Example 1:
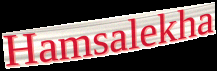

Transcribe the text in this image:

Hamsalekha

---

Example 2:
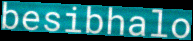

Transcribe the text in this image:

besibhalo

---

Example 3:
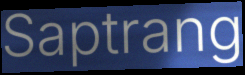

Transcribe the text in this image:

Saptrang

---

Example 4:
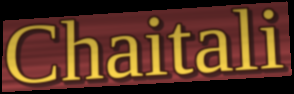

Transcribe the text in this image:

Chaitali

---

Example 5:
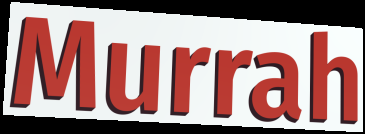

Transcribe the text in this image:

Murrah